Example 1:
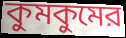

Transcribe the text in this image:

কুমকুমের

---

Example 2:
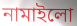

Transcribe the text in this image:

নামাইলো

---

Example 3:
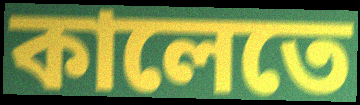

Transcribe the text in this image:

কালেতে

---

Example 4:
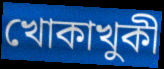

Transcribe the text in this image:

খোকাখুকী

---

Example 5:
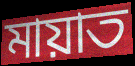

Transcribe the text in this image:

মায়াত